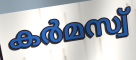
കർമസ്വ്